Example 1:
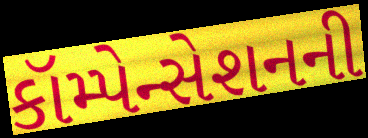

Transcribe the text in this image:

કૉમ્પેન્સેશનની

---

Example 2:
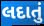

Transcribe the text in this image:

લદાતું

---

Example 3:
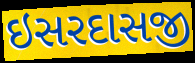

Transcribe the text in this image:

ઇસરદાસજી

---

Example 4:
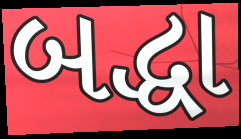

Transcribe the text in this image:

બદ્ધા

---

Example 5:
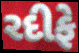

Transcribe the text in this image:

રદીફે